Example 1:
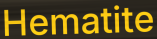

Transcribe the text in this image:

Hematite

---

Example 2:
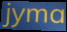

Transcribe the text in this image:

jyma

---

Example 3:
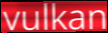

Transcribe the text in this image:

vulkan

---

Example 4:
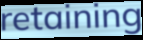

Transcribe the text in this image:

retaining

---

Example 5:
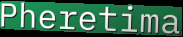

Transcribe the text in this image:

Pheretima